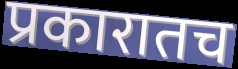
प्रकारातच